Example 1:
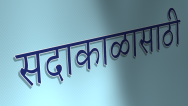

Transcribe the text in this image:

सदाकाळासाठी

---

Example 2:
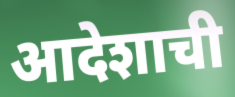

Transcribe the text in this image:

आदेशाची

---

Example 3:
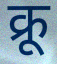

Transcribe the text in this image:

क्रू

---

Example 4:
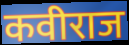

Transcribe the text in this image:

कवीराज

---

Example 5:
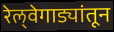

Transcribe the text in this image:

रेल्वेगाड्यांतून